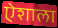
ऐशाला